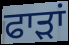
ਫਾੜਾਂ